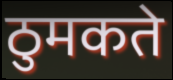
ठुमकते